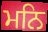
ਮਨਿ